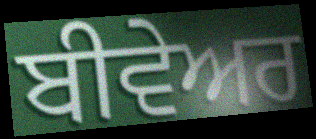
ਬੀਵੇਅਰ